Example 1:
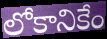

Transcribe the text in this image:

లోకానికేం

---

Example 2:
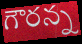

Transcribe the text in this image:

గౌరన్న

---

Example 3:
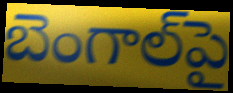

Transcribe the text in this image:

బెంగాల్‌పై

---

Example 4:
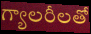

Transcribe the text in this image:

గ్యాలరీలతో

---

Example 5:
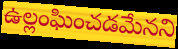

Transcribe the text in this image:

ఉల్లంఘించడమేనని